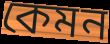
কেমন